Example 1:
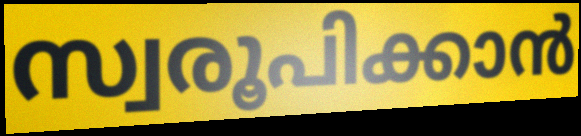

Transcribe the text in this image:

സ്വരൂപിക്കാൻ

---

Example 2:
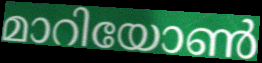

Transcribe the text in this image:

മാറിയോൺ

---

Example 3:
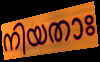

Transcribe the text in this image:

നിയതാഃ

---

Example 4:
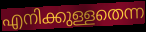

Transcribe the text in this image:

എനിക്കുള്ളതെന്ന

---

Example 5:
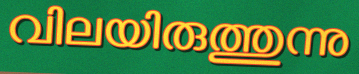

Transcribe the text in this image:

വിലയിരുത്തുന്നു